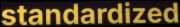
standardized